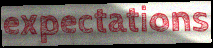
expectations